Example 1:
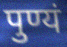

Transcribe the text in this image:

पुण्यं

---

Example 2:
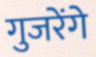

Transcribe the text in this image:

गुजरेंगे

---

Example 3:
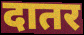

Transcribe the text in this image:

दातर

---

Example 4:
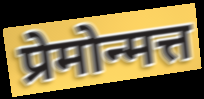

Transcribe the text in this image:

प्रेमोन्मत्त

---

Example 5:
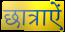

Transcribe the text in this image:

छात्राऐं